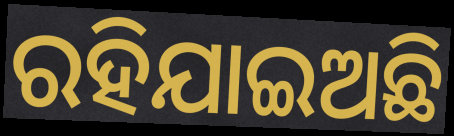
ରହିଯାଇଅଛି